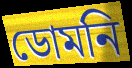
ডোমনি